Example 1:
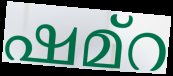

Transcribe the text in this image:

ഷമ്റ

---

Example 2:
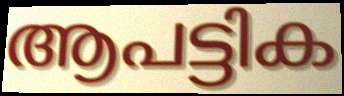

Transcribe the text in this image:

ആപട്ടിക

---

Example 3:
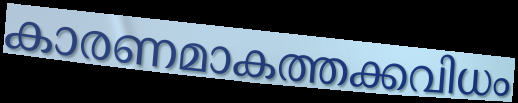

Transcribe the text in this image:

കാരണമാകത്തക്കവിധം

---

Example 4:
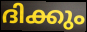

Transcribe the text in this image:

ദിക്കും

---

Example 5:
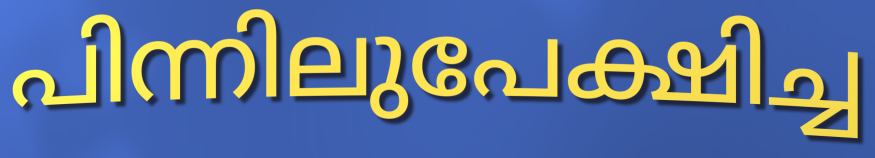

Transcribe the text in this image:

പിന്നിലുപേക്ഷിച്ച